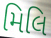
મિલિ